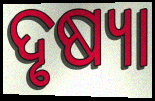
ଦୃଷ୍ୟା